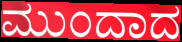
ಮುಂದಾದ